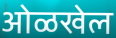
ओळखेल